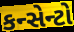
કન્સેન્ટો